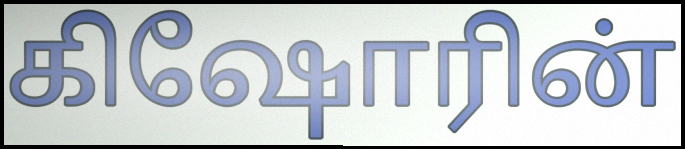
கிஷோரின்